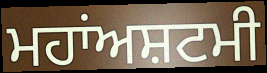
ਮਹਾਂਅਸ਼ਟਮੀ